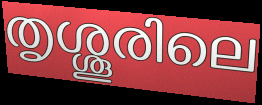
തൃശ്ശൂരിലെ